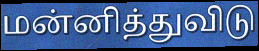
மன்னித்துவிடு